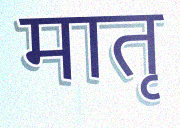
मातृ